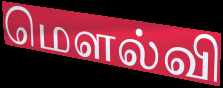
மௌல்வி